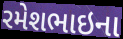
રમેશભાઇના